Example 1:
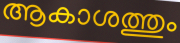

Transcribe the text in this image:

ആകാശത്തും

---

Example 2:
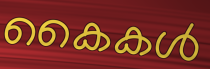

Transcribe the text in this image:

കൈകൾ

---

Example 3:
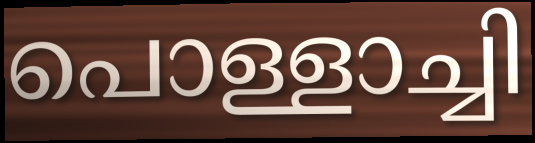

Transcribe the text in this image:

പൊള്ളാച്ചി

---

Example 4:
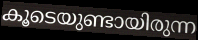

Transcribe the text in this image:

കൂടെയുണ്ടായിരുന്ന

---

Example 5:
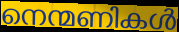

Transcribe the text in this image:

നെന്മണികൾ